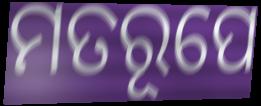
ମତରୂପେ